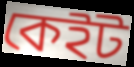
কেইট